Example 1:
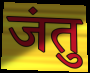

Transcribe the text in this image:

जंतु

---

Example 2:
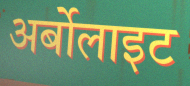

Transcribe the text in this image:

अर्बोलाइट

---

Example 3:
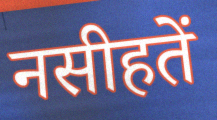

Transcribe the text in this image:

नसीहतें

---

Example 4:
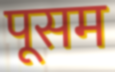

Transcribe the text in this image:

पूसम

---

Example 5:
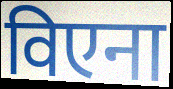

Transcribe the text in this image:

विएना